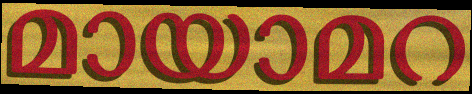
മായാമറ